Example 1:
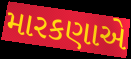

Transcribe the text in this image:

મારકણાએ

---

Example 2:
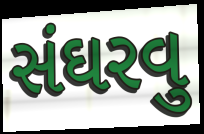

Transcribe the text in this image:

સંઘરવુ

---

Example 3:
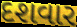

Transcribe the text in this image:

દશવાર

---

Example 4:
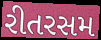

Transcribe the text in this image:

રીતરસમ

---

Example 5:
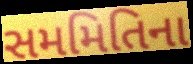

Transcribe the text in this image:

સમમિતિના